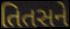
તિતસને